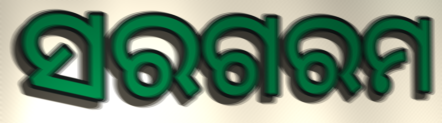
ସରଗରମ